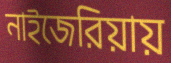
নাইজেরিয়ায়